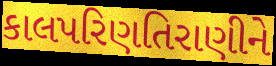
કાલપરિણતિરાણીને